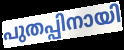
പുതപ്പിനായി